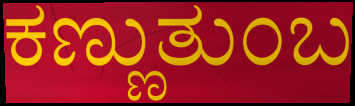
ಕಣ್ಣುತುಂಬ